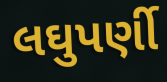
લઘુપર્ણી